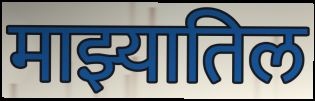
माझ्यातिल